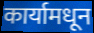
कार्यामधून